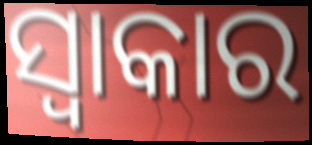
ସ୍ୱାକାର